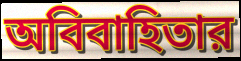
অবিবাহিতার